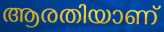
ആരതിയാണ്